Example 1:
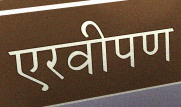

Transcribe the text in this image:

एरवीपण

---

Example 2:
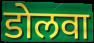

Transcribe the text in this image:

डोलवा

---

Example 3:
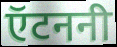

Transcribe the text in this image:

ऍटननी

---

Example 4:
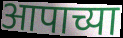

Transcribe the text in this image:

आपाच्या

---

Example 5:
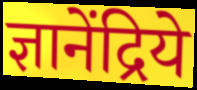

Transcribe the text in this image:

ज्ञानेंद्रिये